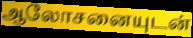
ஆலோசனையுடன்